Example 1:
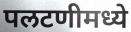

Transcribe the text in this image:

पलटणीमध्ये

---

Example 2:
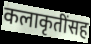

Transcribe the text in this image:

कलाकृतींसह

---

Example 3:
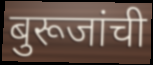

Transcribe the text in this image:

बुरूजांची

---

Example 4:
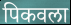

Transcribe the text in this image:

पिकवला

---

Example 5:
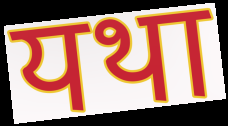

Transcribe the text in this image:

यथा